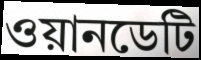
ওয়ানডেটি